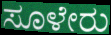
ಸೂಳೇರು